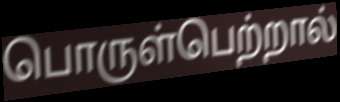
பொருள்பெற்றால்